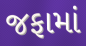
જફામાં